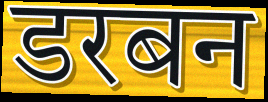
डरबन